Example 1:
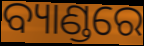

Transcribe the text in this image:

ବ୍ୟାଣ୍ଡରେ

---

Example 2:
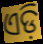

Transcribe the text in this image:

ଏଡ଼ି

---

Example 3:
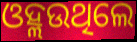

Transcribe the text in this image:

ଓହ୍ଲଉଥିଲେ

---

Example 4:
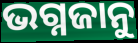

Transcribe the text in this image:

ଭଗ୍ନଜାନୁ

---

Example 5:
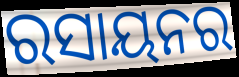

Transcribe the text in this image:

ରସାୟନର